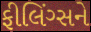
ફીલિંગ્સને